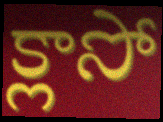
క్లాసో